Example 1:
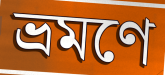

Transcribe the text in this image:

ভ্রমণে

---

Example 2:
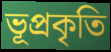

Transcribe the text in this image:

ভূপ্রকৃতি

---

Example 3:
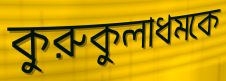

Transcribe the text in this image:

কুরুকুলাধমকে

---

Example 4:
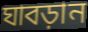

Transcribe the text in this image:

ঘাবড়ান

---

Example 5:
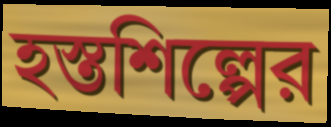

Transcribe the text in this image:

হস্তশিল্পের